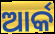
ଆର୍କ